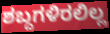
ಶಬ್ದಗಳಿರಲಿಲ್ಲ